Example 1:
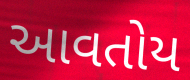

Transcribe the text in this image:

આવતોય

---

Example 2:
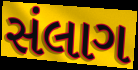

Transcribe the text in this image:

સંલાગ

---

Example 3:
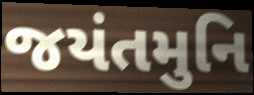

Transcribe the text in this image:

જયંતમુનિ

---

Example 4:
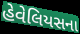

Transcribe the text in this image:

હેવેલિયસના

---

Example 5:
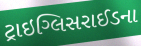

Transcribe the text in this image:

ટ્રાઇગ્લિસરાઈડના